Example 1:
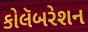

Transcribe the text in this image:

કોલૅબરેશન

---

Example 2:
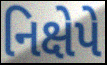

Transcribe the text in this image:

નિક્ષેપે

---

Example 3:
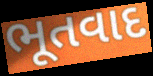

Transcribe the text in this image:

ભૂતવાદ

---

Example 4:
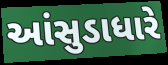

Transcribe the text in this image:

આંસુડાધારે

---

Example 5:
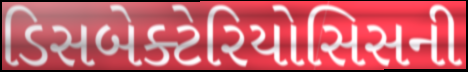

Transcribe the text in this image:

ડિસબેક્ટેરિયોસિસની